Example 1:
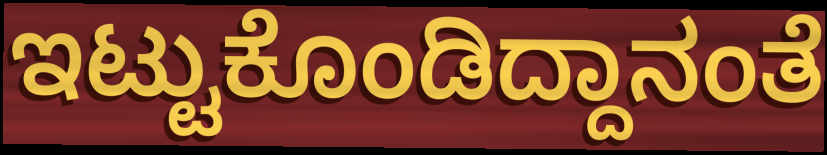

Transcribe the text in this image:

ಇಟ್ಟುಕೊಂಡಿದ್ದಾನಂತೆ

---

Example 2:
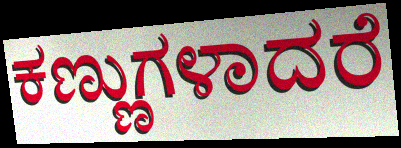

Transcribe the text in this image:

ಕಣ್ಣುಗಳಾದರೆ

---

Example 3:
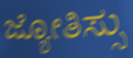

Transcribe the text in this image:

ಜ್ಯೋತಿಸ್ಸು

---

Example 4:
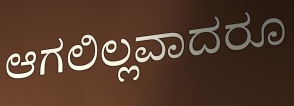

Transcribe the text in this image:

ಆಗಲಿಲ್ಲವಾದರೂ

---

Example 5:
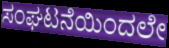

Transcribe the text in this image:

ಸಂಘಟನೆಯಿಂದಲೇ